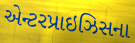
એન્ટરપ્રાઇઝિસના